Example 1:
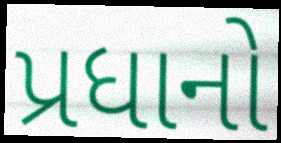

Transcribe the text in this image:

પ્રધાનો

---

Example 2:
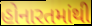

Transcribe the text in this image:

હોનારતમાંથી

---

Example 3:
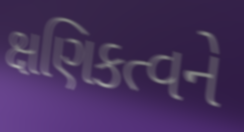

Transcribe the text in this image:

ક્ષણિકત્વને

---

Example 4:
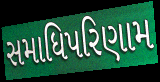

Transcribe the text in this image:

સમાધિપરિણામ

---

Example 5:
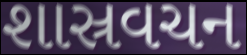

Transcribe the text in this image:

શાસ્રવચન